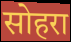
सोहरा